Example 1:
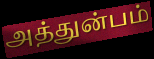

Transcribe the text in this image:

அத்துன்பம்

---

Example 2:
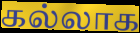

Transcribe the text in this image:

கல்லாக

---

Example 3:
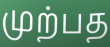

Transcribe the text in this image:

முற்பத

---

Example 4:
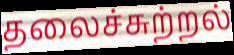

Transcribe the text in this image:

தலைச்சுற்றல்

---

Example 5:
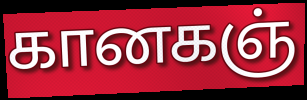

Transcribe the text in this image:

கானகஞ்